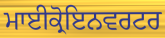
ਮਾਈਕ੍ਰੋਇਨਵਰਟਰ